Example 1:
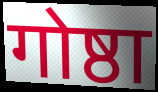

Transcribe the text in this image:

गोष्ठा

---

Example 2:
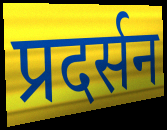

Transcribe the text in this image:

प्रदर्सन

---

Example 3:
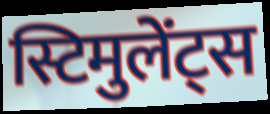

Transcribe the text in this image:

स्टिमुलेंट्स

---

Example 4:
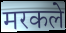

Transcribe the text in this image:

मरकले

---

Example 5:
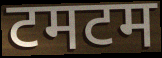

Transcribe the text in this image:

टमटम